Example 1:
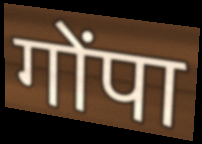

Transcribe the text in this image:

गोंपा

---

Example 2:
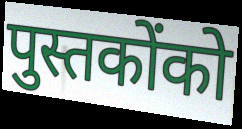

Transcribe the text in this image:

पुस्तकोंको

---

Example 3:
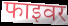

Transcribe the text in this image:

फाइवर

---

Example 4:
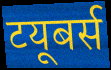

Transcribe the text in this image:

टयूबर्स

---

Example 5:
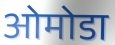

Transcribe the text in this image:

ओमोडा